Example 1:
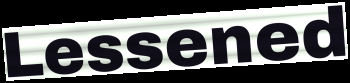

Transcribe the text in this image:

Lessened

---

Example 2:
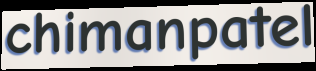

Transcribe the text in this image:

chimanpatel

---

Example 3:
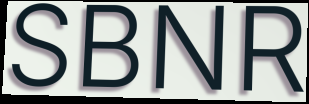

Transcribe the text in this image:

SBNR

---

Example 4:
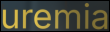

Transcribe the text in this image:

uremia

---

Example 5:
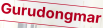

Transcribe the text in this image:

Gurudongmar